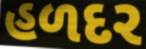
હળદર